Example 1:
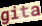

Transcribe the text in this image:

gita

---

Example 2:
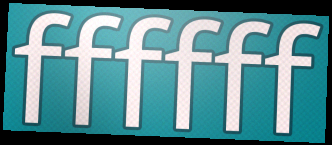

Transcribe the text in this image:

ffffff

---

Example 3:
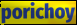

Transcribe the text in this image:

porichoy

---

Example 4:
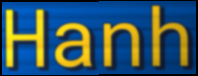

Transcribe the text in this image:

Hanh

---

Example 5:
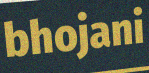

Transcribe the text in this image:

bhojani